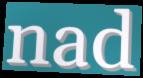
nad